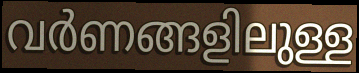
വർണങ്ങളിലുള്ള